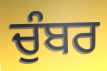
ਚੁੰਬਰ